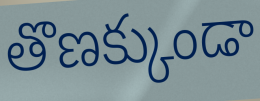
తొణక్కుండా